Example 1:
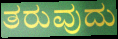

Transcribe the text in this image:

ತರುವುದು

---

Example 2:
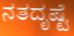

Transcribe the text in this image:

ನತದೃಷ್ಟೆ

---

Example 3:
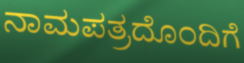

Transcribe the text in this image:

ನಾಮಪತ್ರದೊಂದಿಗೆ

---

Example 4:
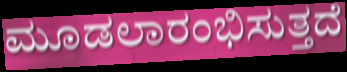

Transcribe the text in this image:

ಮೂಡಲಾರಂಭಿಸುತ್ತದೆ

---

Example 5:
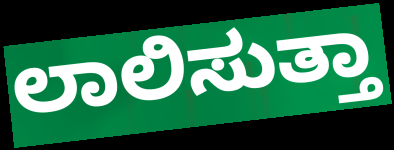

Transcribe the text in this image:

ಲಾಲಿಸುತ್ತಾ